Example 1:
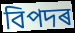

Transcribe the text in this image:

বিপদৰ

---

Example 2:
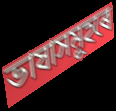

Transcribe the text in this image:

ভাষাসমূহৰে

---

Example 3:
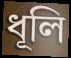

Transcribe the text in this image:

ধূলি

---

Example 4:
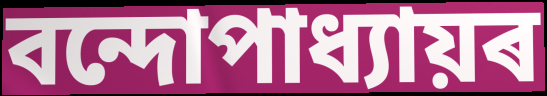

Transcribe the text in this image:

বন্দোপাধ্যায়ৰ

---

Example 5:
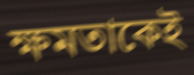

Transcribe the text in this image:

ক্ষমতাকেই